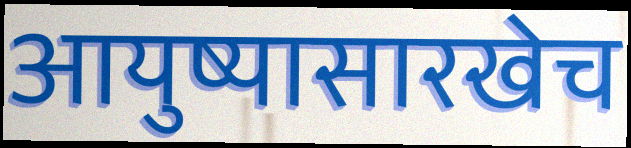
आयुष्यासारखेच